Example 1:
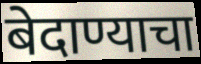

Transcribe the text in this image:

बेदाण्याचा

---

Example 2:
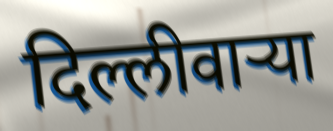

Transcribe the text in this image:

दिल्लीवाऱ्या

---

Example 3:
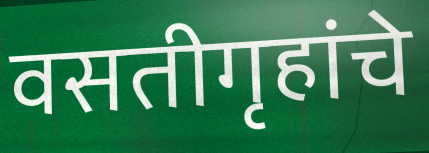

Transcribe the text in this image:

वसतीगृहांचे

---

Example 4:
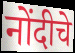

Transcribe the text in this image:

नोंदीचे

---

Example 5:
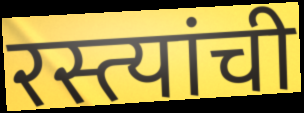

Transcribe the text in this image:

रस्त्यांची